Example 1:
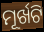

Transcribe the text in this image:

ମୂର୍ଖଟି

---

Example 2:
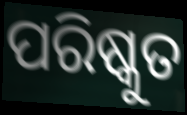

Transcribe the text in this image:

ପରିଷ୍କୁତ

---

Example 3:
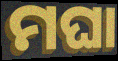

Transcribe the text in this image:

ମଘା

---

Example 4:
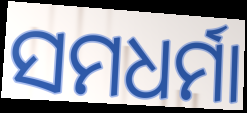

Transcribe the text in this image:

ସମଧର୍ମା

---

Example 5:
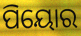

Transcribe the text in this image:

ପିୟୋର